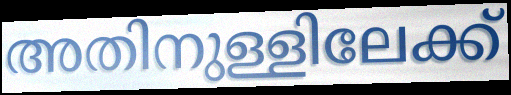
അതിനുള്ളിലേക്ക്